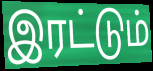
இரட்டும்